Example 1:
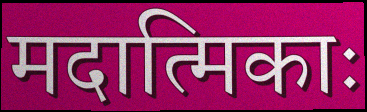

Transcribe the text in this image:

मदात्मिकाः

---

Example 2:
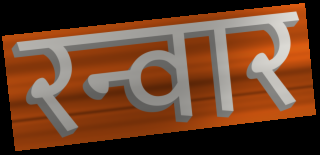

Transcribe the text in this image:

रन्वार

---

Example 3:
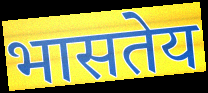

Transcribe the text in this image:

भासतेय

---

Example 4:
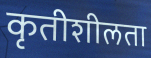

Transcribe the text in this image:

कृतीशीलता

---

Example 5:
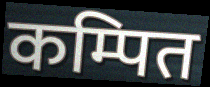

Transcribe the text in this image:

कम्पित